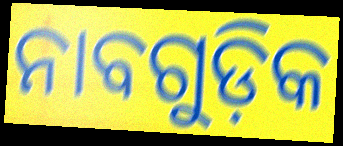
ନାବଗୁଡ଼ିକ